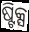
ଷ୍ଟିକ୍ସ